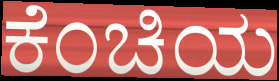
ಕೆಂಚಿಯ